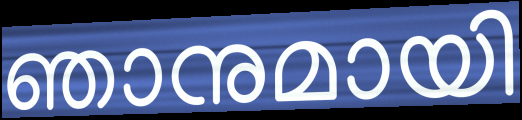
ഞാനുമായി